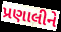
પ્રણાલીને